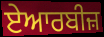
ਏਆਰਬੀਜ਼